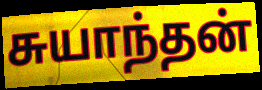
சுயாந்தன்